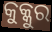
କୁକ୍କୁର